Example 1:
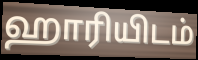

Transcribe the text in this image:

ஹாரியிடம்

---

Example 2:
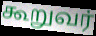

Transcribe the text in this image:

கூறுவர்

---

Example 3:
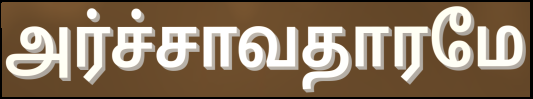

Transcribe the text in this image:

அர்ச்சாவதாரமே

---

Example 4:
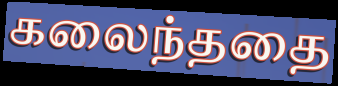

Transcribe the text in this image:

கலைந்ததை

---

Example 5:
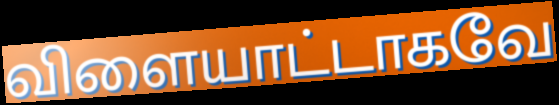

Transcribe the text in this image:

விளையாட்டாகவே